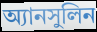
অ্যানসুলিন